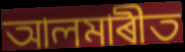
আলমাৰীত